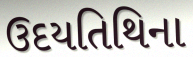
ઉદયતિથિના